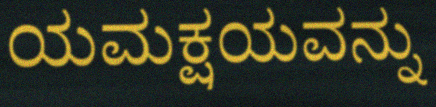
ಯಮಕ್ಷಯವನ್ನು